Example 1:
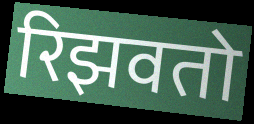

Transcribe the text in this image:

रिझवतो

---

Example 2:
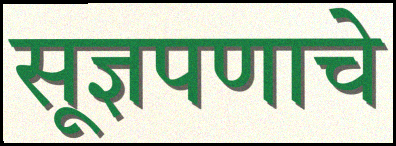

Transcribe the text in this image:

सूज्ञपणाचे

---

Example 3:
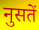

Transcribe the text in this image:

नुसतें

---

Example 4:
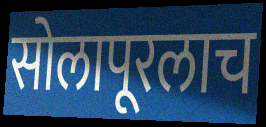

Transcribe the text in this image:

सोलापूरलाच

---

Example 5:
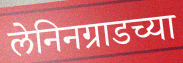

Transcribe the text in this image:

लेनिनग्राडच्या